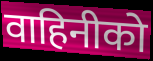
वाहिनीको